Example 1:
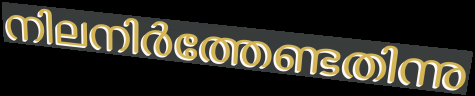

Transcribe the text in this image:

നിലനിർത്തേണ്ടതിന്നു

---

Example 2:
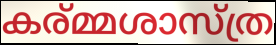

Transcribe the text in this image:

കര്മ്മശാസ്ത്ര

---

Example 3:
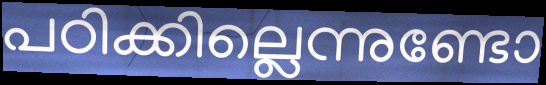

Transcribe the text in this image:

പഠിക്കില്ലെന്നുണ്ടോ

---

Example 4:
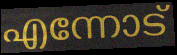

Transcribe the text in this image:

എന്നോട്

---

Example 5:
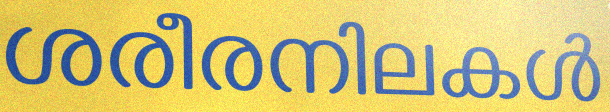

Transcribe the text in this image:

ശരീരനിലകൾ